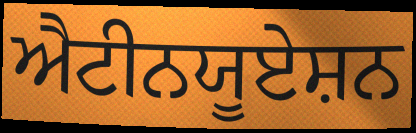
ਐਟੀਨਯੂਏਸ਼ਨ